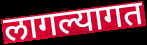
लागल्यागत